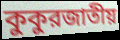
কুকুরজাতীয়